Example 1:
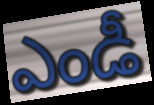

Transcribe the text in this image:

ఎండీ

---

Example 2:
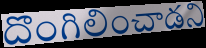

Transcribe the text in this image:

దొంగిలించాడని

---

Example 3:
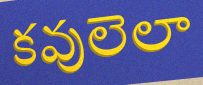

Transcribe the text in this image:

కవులెలా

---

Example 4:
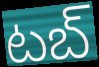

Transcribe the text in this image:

టబ్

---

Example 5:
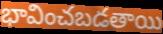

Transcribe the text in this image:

భావించబడతాయి